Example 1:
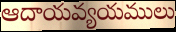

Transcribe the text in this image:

ఆదాయవ్యయములు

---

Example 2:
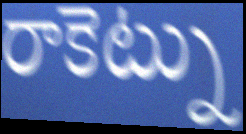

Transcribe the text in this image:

రాకెట్ను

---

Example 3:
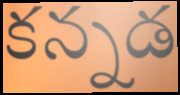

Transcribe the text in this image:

కన్నడ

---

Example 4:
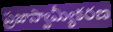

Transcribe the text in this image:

ప్రజాస్వామ్యీకరణ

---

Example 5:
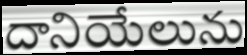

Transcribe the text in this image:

దానియేలును